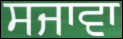
ਸਜਾਵਾ